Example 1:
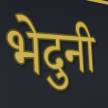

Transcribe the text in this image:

भेदुनी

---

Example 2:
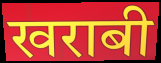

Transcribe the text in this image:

खराबी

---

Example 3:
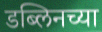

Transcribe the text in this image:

डब्लिनच्या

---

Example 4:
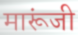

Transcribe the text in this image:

मारूंजी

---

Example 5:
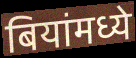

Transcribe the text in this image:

बियांमध्ये